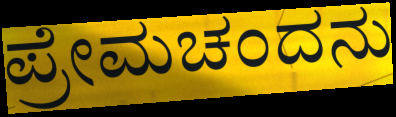
ಪ್ರೇಮಚಂದನು